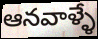
ఆనవాళ్ళే